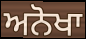
ਅਨੋਖਾ